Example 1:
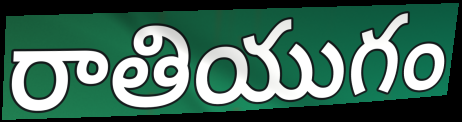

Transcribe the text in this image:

రాతియుగం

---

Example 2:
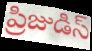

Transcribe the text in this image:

ప్రిజుడిస్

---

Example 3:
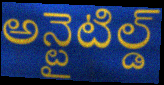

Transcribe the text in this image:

అన్టైటిల్డ్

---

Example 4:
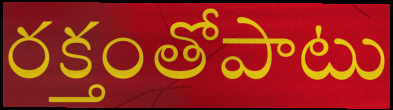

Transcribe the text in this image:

రక్తంతోపాటు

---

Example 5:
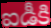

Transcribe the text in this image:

ఐడీకి